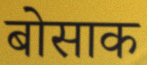
बोसाक